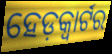
ହେଡ଼କ୍ୱାର୍ଟର